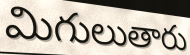
మిగులుతారు